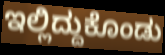
ಇಲ್ಲಿದ್ದುಕೊಂಡು